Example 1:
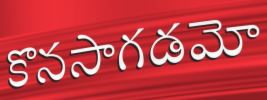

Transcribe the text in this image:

కొనసాగడమో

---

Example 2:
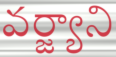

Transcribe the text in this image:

వర్జ్యాని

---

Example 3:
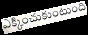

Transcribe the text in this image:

ఎక్కించుకుంటుంది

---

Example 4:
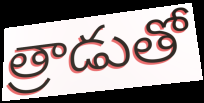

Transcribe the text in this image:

త్రాడుతో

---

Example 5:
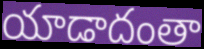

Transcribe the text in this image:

యాడాదంతా